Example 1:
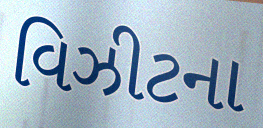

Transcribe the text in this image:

વિઝીટના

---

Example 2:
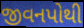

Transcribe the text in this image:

જીવનપોથી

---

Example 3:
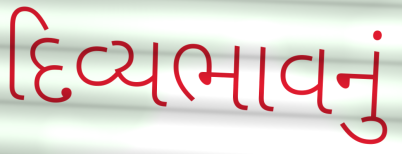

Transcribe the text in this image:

દિવ્યભાવનું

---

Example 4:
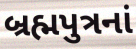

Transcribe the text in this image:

બ્રહ્મપુત્રનાં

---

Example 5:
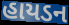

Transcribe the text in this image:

હાયડન